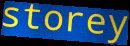
storey